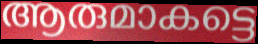
ആരുമാകട്ടെ